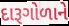
દારૂગોળાને